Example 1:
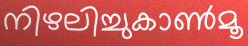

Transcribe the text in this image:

നിഴലിച്ചുകാൺമൂ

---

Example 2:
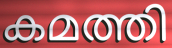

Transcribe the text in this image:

കമത്തി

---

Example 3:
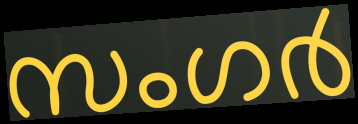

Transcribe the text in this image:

സംഗർ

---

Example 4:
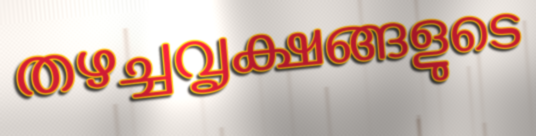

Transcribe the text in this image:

തഴച്ചവൃക്ഷങ്ങളുടെ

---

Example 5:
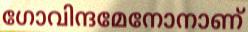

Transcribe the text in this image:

ഗോവിന്ദമേനോനാണ്